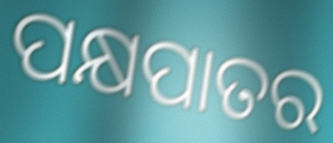
ପକ୍ଷପାତର